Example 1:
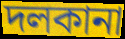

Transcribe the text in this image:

দলকানা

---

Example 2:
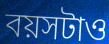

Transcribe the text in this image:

বয়সটাও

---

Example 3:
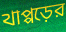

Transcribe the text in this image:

থাপ্পড়ের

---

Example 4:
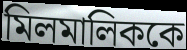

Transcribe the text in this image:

মিলমালিককে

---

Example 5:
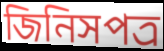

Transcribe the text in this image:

জিনিসপত্র